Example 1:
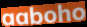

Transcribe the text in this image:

aaboho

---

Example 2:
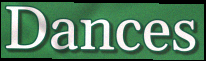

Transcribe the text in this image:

Dances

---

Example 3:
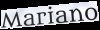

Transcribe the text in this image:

Mariano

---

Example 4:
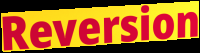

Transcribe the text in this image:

Reversion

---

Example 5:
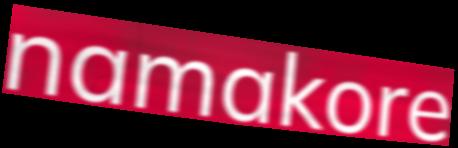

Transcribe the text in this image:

namakore